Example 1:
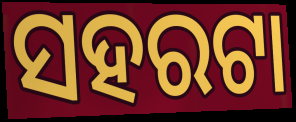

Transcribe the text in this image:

ସହରଟା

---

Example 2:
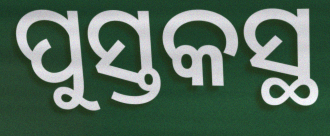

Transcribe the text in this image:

ପୁସ୍ତକସ୍ଥ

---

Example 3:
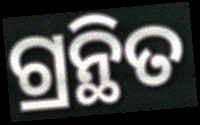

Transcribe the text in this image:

ଗ୍ରନ୍ଥିତ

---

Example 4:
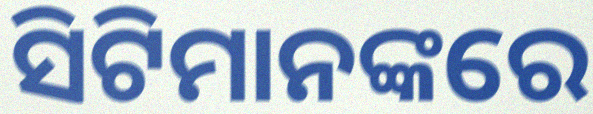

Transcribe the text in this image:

ସିଟିମାନଙ୍କରେ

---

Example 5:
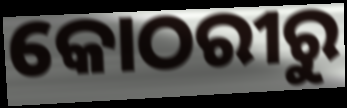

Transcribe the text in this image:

କୋଠରୀରୁ